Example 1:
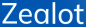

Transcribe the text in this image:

Zealot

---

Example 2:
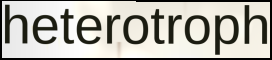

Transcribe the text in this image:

heterotroph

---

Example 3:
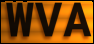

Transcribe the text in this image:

WVA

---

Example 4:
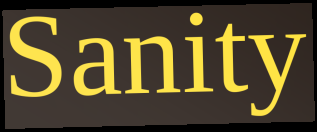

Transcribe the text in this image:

Sanity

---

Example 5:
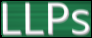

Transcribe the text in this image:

LLPs